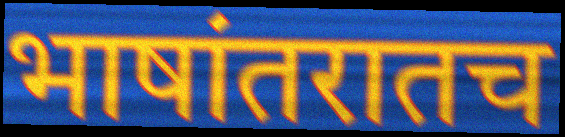
भाषांतरातच